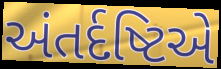
અંતર્દષ્ટિએ